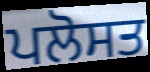
ਪਲੋਸਤ